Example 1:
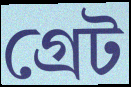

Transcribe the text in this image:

গ্রেট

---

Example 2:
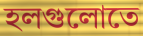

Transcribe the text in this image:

হলগুলোতে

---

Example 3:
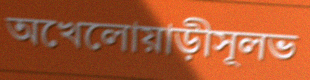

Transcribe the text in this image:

অখেলোয়াড়ীসূলভ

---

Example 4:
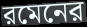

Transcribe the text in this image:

রমেনের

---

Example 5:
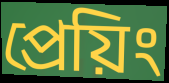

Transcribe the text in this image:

প্রেয়িং